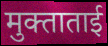
मुक्ताताई